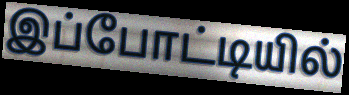
இப்போட்டியில்